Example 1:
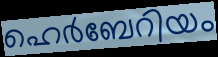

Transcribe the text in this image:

ഹെർബേറിയം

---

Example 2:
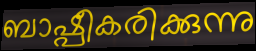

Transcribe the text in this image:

ബാഷ്പീകരിക്കുന്നു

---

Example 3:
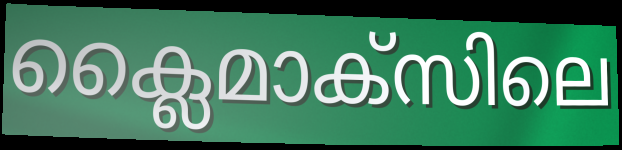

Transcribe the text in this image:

ക്ലൈമാക്സിലെ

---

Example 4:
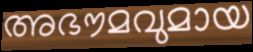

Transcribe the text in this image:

അഭൗമവുമായ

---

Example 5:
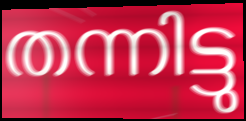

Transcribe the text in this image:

തന്നിട്ടു